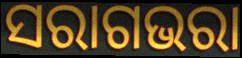
ସରାଗଭରା